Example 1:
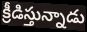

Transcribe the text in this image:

క్రీడిస్తున్నాడు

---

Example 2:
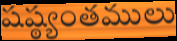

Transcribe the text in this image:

షష్ఠ్యంతములు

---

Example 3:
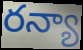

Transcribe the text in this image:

రన్యా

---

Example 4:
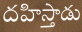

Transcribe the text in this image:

దహిస్తాడు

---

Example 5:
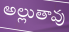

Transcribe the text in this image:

అల్లుతావు